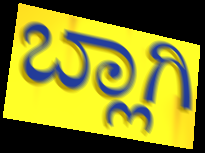
ಬ್ಲಾಗಿ